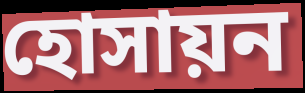
হোসায়ন